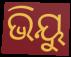
ଭିୟୁ